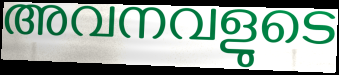
അവനവളുടെ